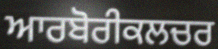
ਆਰਬੋਰੀਕਲਚਰ